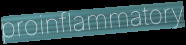
proinflammatory